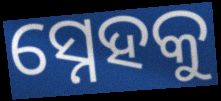
ସ୍ନେହକୁ